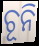
ଚୂନି